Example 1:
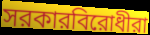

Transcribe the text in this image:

সরকারবিরোধীরা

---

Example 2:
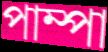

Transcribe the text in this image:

পাম্পা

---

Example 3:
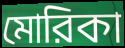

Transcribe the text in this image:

মোরিকা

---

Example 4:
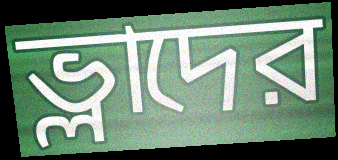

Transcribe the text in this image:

ভ্লাদের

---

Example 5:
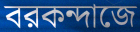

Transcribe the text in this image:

বরকন্দাজে